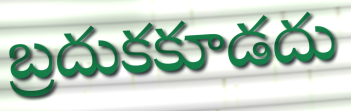
బ్రదుకకూడదు